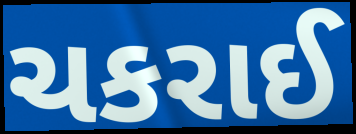
ચકરાઈ